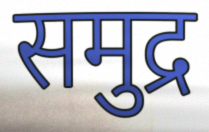
समुद्र